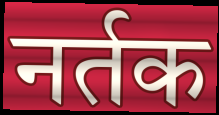
नर्तक